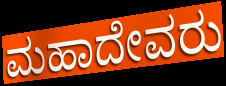
ಮಹಾದೇವರು